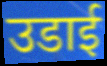
उडाई